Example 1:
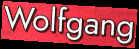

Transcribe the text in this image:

Wolfgang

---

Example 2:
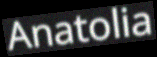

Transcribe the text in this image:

Anatolia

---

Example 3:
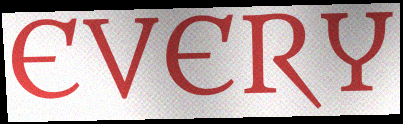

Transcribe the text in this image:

EVERY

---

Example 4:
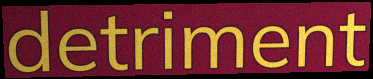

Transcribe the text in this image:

detriment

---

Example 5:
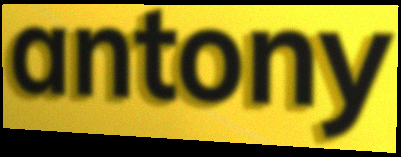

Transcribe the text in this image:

antony